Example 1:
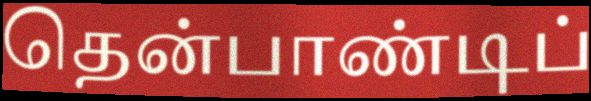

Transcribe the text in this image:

தென்பாண்டிப்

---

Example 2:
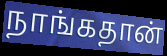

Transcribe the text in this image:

நாங்கதான்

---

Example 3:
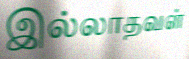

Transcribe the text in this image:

இல்லாதவள்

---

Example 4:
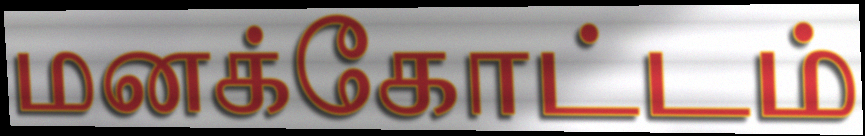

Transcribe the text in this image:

மனக்கோட்டம்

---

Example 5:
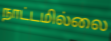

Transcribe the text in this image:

நாட்டமில்லை